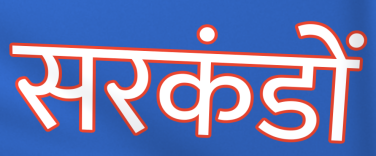
सरकंडों